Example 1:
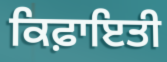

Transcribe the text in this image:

ਕਿਫ਼ਾਇਤੀ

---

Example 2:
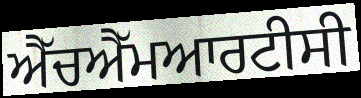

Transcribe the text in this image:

ਐੱਚਐੱਮਆਰਟੀਸੀ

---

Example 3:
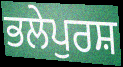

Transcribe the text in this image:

ਭਲੇਪੁਰਸ਼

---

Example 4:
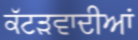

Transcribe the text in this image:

ਕੱਟੜਵਾਦੀਆਂ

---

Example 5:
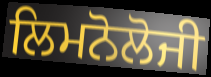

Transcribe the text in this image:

ਲਿਮਨੋਲੋਜੀ